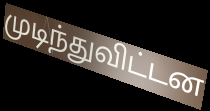
முடிந்துவிட்டன